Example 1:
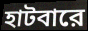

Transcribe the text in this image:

হাটবারে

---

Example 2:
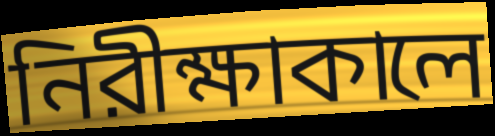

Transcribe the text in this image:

নিরীক্ষাকালে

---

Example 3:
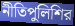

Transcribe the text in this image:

নীতিপুলিশির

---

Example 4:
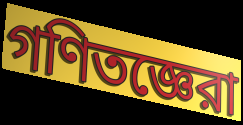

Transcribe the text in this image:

গণিতজ্ঞেরা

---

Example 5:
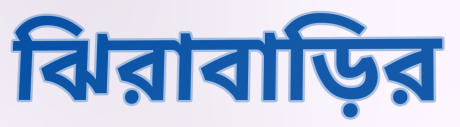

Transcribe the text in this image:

ঝিরাবাড়ির